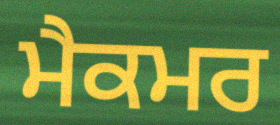
ਮੈਕਮਰ